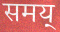
समय्